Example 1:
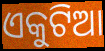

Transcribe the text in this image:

ଏକୁଟିଆ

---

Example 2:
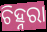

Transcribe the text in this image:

ଚିହ୍ନରା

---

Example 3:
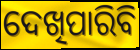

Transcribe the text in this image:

ଦେଖିପାରିବି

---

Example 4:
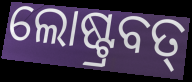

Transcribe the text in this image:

ଲୋଷ୍ଟ୍ରବତ୍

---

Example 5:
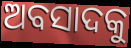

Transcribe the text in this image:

ଅବସାଦକୁ